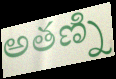
అతణ్ని